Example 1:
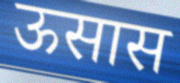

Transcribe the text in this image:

ऊसास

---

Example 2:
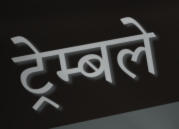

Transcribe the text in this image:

ट्रेम्बले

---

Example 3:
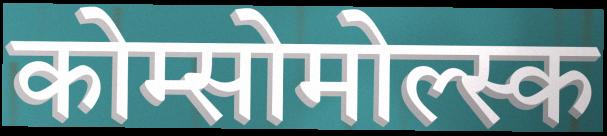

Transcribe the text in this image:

कोम्सोमोल्स्क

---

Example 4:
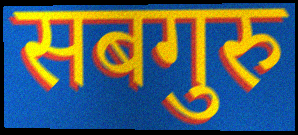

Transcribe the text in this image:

सबगुरु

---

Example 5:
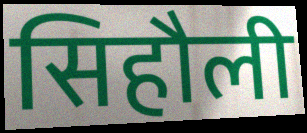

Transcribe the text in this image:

सिहौली